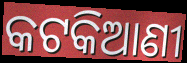
କଟକିଆଣୀ